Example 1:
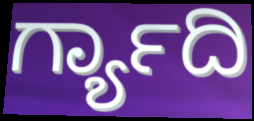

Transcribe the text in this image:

ರ್ಗ್ಯಾದಿ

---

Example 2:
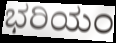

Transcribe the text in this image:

ಭರಿಯಂ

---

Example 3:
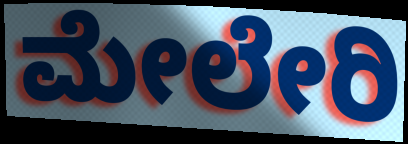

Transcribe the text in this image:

ಮೇಲೇರಿ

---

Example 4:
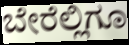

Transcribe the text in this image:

ಬೇರೆಲ್ಲಿಗೂ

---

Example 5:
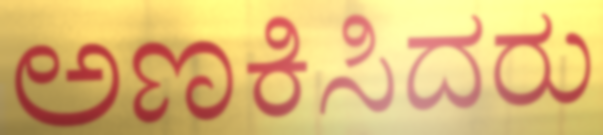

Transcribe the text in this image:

ಅಣಕಿಸಿದರು